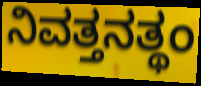
ನಿವತ್ತನತ್ಥಂ